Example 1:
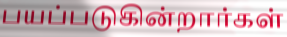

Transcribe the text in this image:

பயப்படுகின்றார்கள்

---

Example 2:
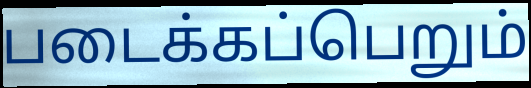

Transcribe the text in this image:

படைக்கப்பெறும்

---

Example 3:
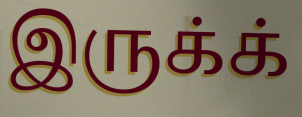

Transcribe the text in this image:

இருக்க்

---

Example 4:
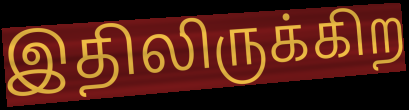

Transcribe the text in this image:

இதிலிருக்கிற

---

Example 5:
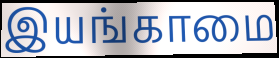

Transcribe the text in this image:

இயங்காமை